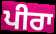
ਪੀਰਾ